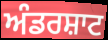
ਅੰਡਰਸ਼ਾਟ